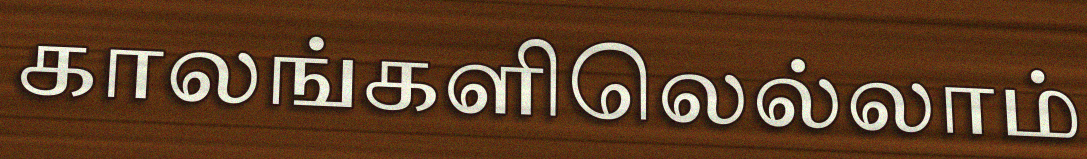
காலங்களிலெல்லாம்